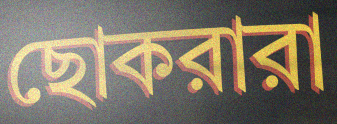
ছোকরারা